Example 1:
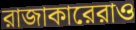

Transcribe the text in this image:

রাজাকারেরাও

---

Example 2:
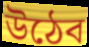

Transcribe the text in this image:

উঠেব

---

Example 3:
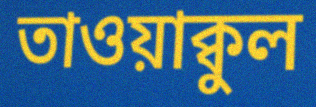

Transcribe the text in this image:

তাওয়াক্বুল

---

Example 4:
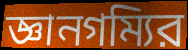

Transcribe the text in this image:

জ্ঞানগম্যির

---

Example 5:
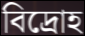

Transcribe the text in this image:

বিদ্রোহ